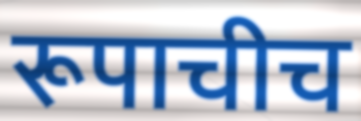
रूपाचीच